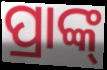
ପ୍ରାଙ୍କ୍